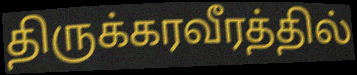
திருக்கரவீரத்தில்